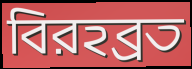
বিরহব্রত